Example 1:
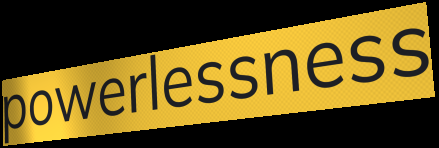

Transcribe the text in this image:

powerlessness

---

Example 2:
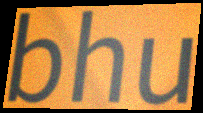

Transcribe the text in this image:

bhu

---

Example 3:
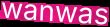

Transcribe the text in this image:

wanwas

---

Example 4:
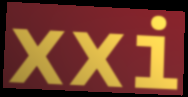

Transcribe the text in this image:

xxi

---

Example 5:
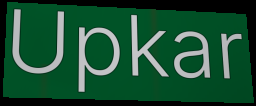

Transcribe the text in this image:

Upkar